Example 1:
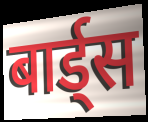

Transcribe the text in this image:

बार्ड्स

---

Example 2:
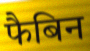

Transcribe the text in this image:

फैबिन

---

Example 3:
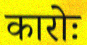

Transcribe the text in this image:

कारोः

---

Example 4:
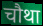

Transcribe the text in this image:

चौथा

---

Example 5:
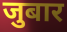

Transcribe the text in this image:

जुबार